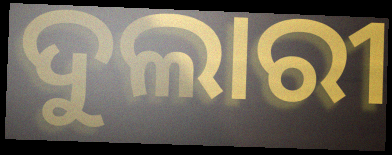
ଦୁଲାରୀ